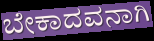
ಬೇಕಾದವನಾಗಿ